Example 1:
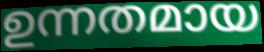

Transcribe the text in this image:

ഉന്നതമായ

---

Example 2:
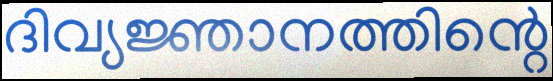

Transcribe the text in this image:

ദിവ്യജ്ഞാനത്തിന്റെ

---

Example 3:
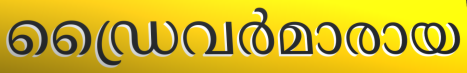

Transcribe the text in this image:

ഡ്രൈവർമാരായ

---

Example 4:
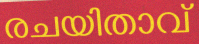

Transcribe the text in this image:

രചയിതാവ്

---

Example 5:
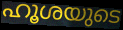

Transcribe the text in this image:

ഹൂശയുടെ